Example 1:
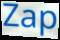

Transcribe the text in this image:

Zap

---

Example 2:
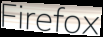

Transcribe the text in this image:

Firefox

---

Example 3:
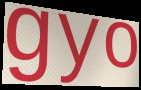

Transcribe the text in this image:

gyo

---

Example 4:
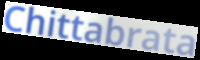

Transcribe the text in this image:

Chittabrata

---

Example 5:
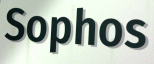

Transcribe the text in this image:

Sophos